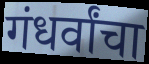
गंधर्वांचा